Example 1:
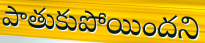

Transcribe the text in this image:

పాతుకుపోయిందని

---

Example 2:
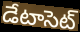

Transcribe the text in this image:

డేటాసెట్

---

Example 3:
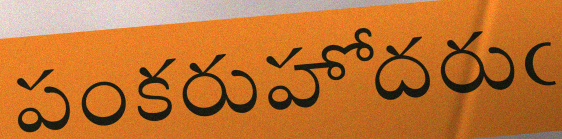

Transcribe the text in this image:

పంకరుహోదరుఁ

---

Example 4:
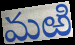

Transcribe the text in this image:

మఱి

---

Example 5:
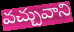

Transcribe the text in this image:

వచ్చువాని